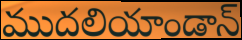
ముదలియాండాన్